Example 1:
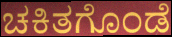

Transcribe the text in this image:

ಚಕಿತಗೊಂಡೆ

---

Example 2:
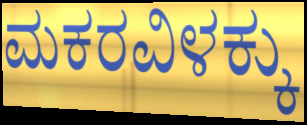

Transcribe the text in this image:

ಮಕರವಿಳಕ್ಕು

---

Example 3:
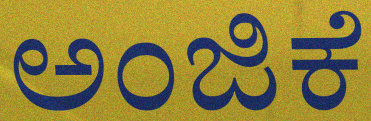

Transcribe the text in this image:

ಅಂಜಿಕೆ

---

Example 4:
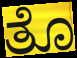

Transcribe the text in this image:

ತೊ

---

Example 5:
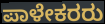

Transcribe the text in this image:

ಪಾಳೇಕರರು